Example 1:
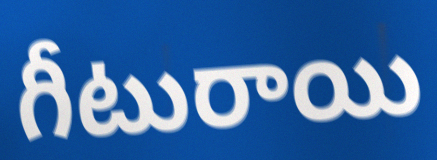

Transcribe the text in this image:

గీటురాయి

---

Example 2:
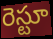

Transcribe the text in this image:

రెస్టూ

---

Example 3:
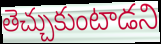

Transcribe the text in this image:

తెచ్చుకుంటాడని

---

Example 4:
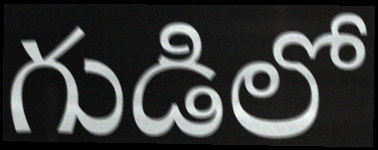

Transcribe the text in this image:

గుడిలో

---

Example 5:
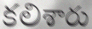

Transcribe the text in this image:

కలిశారు